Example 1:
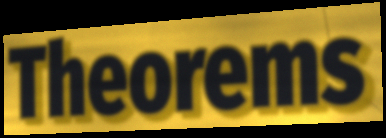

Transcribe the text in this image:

Theorems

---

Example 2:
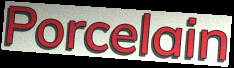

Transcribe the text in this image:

Porcelain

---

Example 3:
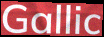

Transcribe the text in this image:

Gallic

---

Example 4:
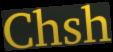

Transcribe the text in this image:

Chsh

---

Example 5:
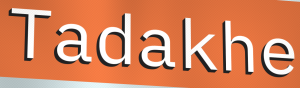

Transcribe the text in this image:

Tadakhe